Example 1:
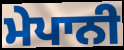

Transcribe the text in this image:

ਮੇਪਾਨੀ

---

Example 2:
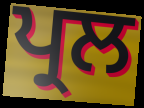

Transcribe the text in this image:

ਪ੍ਰਲ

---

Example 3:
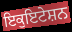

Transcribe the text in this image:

ਇਕੁਇਟੇਸ਼ਨ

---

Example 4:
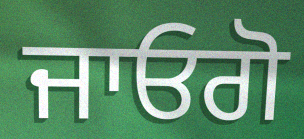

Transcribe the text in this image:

ਜਾਓਗੋ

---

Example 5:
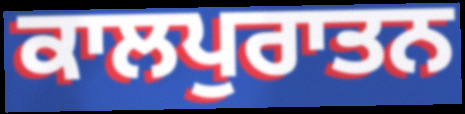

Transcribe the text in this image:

ਕਾਲਪੁਰਾਤਨ